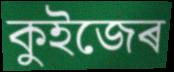
কুইজেৰ